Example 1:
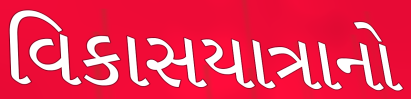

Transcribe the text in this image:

વિકાસયાત્રાનો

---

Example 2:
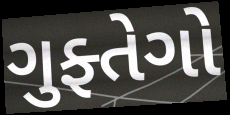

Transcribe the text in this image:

ગુફ્તેગો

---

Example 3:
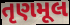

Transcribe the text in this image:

તૃણમૂલ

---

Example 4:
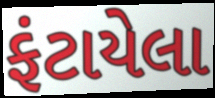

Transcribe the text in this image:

ફંટાયેલા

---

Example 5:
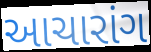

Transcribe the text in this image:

આચારાંગ